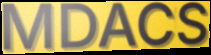
MDACS